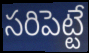
సరిపెట్టే